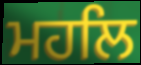
ਮਹਲਿ